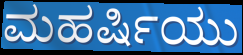
ಮಹರ್ಷಿಯು